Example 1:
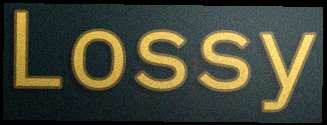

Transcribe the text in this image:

Lossy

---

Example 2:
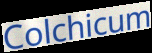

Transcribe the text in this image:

Colchicum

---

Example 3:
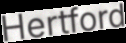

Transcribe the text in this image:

Hertford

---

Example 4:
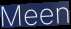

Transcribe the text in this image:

Meen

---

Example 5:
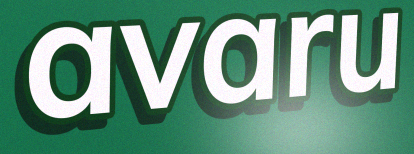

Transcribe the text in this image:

avaru